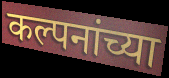
कल्पनांच्या